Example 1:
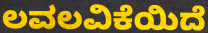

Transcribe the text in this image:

ಲವಲವಿಕೆಯಿದೆ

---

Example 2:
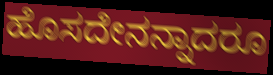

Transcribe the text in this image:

ಹೊಸದೇನನ್ನಾದರೂ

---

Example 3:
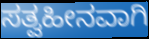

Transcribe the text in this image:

ಸತ್ವಹೀನವಾಗಿ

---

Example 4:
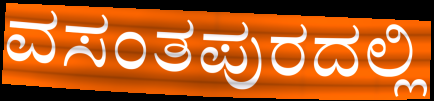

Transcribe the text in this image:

ವಸಂತಪುರದಲ್ಲಿ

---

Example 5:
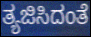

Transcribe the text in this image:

ತ್ಯಜಿಸಿದಂತೆ